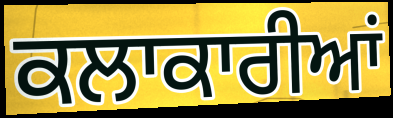
ਕਲਾਕਾਰੀਆਂ